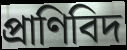
প্রাণিবিদ